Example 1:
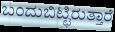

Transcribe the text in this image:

ಬಂದುಬಿಟ್ಟಿರುತ್ತಾರೆ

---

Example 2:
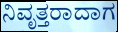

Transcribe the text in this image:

ನಿವೃತ್ತರಾದಾಗ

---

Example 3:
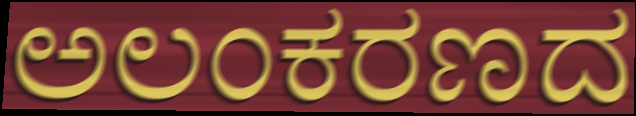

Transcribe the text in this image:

ಅಲಂಕರಣದ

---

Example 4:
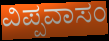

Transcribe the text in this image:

ವಿಪ್ಪವಾಸಂ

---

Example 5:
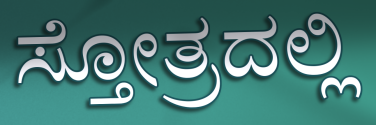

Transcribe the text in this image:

ಸ್ತೋತ್ರದಲ್ಲಿ